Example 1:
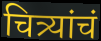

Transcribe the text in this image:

चित्र्यांचं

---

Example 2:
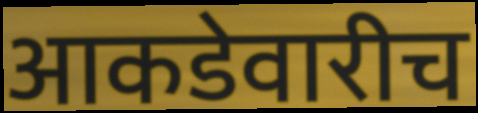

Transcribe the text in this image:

आकडेवारीच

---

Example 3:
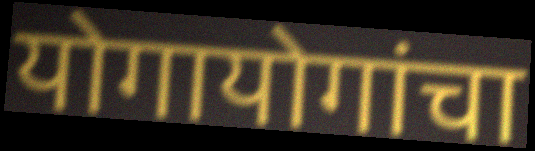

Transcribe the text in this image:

योगायोगांचा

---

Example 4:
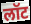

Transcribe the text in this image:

लॉट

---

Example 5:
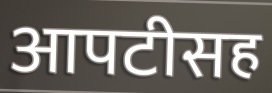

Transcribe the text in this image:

आपटीसह